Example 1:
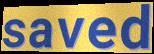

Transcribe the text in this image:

saved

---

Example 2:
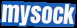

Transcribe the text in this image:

mysock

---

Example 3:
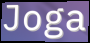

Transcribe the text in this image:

Joga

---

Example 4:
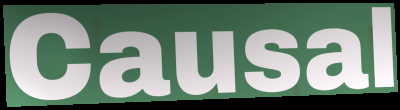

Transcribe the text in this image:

Causal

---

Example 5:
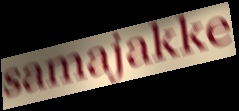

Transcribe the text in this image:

samajakke